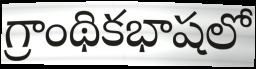
గ్రాంథికభాషలో